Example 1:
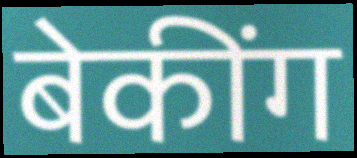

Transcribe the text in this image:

बेकींग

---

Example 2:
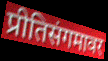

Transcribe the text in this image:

प्रीतिसंगमावर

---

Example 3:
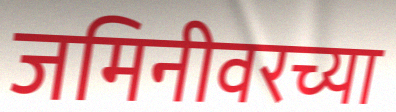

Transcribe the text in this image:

जमिनीवरच्या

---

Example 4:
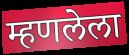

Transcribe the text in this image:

म्हणलेला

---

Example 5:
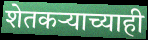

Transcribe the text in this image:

शेतकऱ्याच्याही